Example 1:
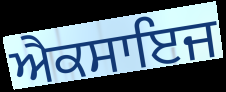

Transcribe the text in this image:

ਐਕਸਾਇਜ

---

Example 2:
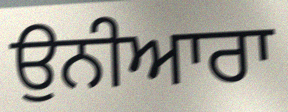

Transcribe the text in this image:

ਉਨੀਆਰਾ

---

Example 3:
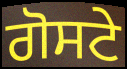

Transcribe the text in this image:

ਗੋਸਟੇ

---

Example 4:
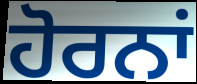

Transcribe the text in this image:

ਹੋਰਨਾਂ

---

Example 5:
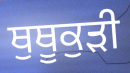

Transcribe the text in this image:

ਥੁਥੂਕੁੜੀ